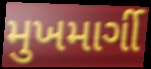
મુખમાર્ગી